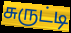
சுருட்டி